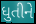
ધુતીને